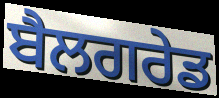
ਬੈਲਗਰੇਡ